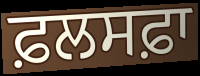
ਫ਼ਲਸਫ਼ਾ